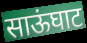
साऊंघाट